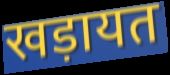
खड़ायत